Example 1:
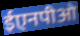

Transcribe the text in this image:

ईएनपीओ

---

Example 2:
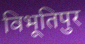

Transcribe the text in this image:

विभूतिपुर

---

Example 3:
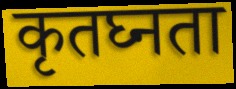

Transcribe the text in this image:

कृतघ्नता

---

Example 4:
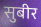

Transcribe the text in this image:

सुबीर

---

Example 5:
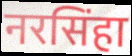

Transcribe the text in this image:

नरसिंहा